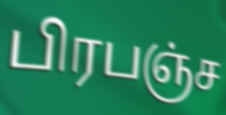
பிரபஞ்ச